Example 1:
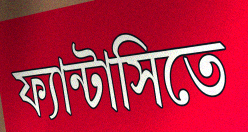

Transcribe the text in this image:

ফ্যান্টাসিতে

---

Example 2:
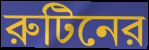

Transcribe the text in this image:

রুটিনের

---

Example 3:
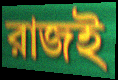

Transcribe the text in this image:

রাজই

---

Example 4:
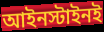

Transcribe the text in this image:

আইনস্টাইনই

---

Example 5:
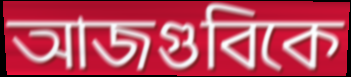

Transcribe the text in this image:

আজগুবিকে